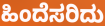
ಹಿಂದೆಸರಿದು